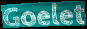
Goelet